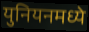
युनियनमध्ये